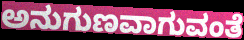
ಅನುಗುಣವಾಗುವಂತೆ